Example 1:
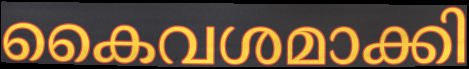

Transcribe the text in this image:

കൈവശമാക്കി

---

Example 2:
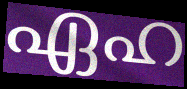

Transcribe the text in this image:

ഏഹ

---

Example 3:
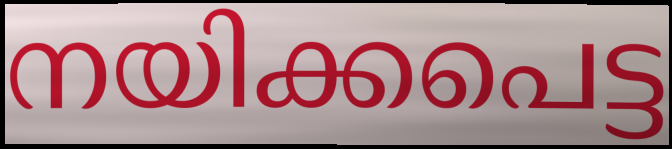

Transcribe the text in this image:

നയിക്കപെട്ട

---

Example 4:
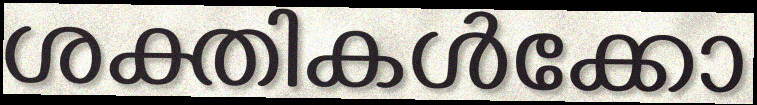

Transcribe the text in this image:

ശക്തികൾക്കോ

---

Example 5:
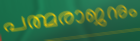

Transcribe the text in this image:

പത്മരാജനും